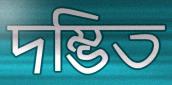
দম্ভিত